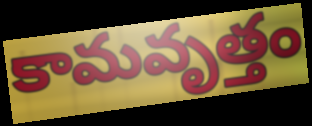
కామవృత్తం